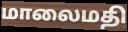
மாலைமதி